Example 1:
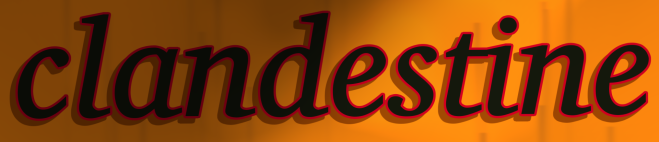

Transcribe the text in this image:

clandestine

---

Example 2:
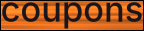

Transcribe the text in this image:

coupons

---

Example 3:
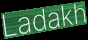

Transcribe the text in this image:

Ladakh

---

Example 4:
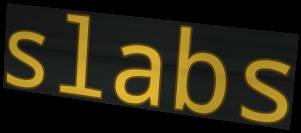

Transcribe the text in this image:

slabs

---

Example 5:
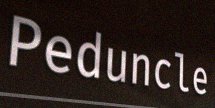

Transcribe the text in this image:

Peduncle